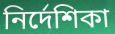
নিৰ্দেশিকা